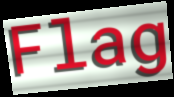
Flag